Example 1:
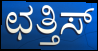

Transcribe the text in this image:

ಛತ್ತಿಸ್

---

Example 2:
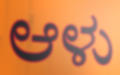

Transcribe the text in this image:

ಆಳು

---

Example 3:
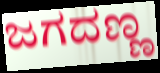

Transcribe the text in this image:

ಜಗದಣ್ಣ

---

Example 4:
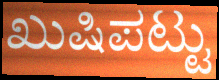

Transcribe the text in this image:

ಖುಷಿಪಟ್ಟು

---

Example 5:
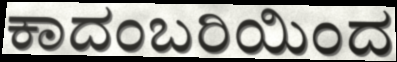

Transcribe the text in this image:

ಕಾದಂಬರಿಯಿಂದ